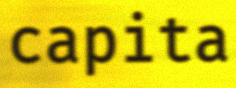
capita